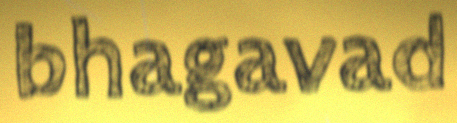
bhagavad